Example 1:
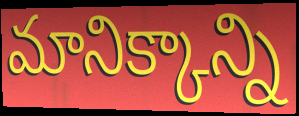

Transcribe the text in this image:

మానిక్కాన్ని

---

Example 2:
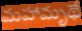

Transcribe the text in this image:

మహామృథే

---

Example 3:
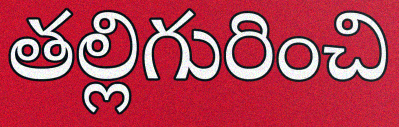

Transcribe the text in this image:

తల్లిగురించి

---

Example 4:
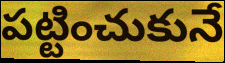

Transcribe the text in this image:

పట్టించుకునే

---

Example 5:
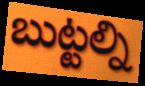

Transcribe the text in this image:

బుట్టల్ని